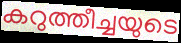
കറുത്തീച്ചയുടെ